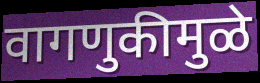
वागणुकीमुळे